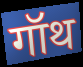
गॉथ